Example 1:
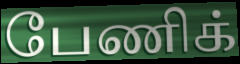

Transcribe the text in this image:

பேணிக்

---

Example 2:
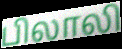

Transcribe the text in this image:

பிலாலி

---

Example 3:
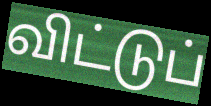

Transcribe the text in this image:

விட்டுப்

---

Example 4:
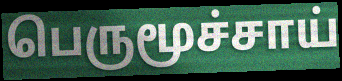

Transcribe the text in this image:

பெருமூச்சாய்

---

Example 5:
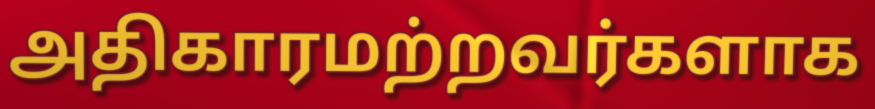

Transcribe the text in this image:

அதிகாரமற்றவர்களாக